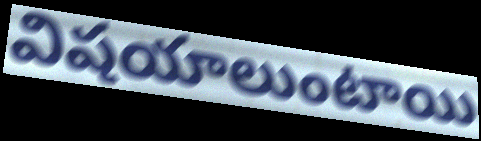
విషయాలుంటాయి